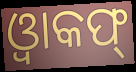
ଓ୍ଵାକଫ୍